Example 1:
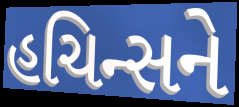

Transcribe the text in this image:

હચિન્સને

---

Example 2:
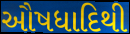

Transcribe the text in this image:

ઔષધાદિથી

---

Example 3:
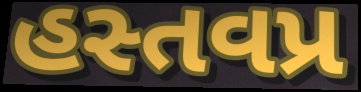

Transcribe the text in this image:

હસ્તવપ્ર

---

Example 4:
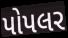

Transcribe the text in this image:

પોપલર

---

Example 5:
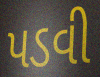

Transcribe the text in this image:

પડવી